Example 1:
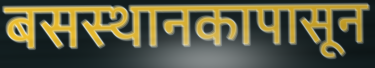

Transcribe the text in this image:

बसस्थानकापासून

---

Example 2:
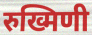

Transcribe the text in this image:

रुख्मिणी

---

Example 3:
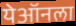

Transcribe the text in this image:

येऑनला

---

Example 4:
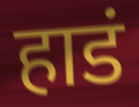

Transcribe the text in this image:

हाडं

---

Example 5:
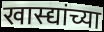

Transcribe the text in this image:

खास्द्यांच्या